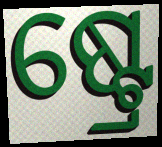
ଷ୍ଟ୍ରେ